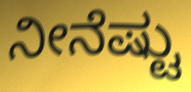
ನೀನೆಷ್ಟು